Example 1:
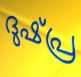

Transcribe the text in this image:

ദുഷ്‌പ്ര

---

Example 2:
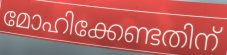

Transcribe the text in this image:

മോഹിക്കേണ്ടതിന്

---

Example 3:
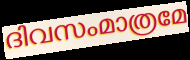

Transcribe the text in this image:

ദിവസംമാത്രമേ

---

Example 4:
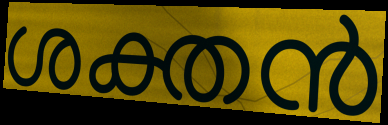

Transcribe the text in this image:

ശക്തൻ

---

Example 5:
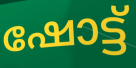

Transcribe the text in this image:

ഷോട്ട്